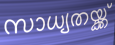
സാധ്യതയ്ക്ക്